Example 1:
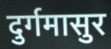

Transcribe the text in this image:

दुर्गमासुर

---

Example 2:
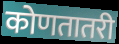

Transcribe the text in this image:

कोणतातरी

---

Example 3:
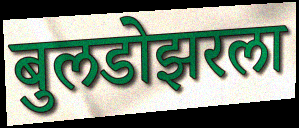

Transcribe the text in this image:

बुलडोझरला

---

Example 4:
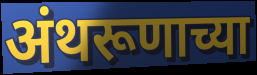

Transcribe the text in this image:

अंथरूणाच्या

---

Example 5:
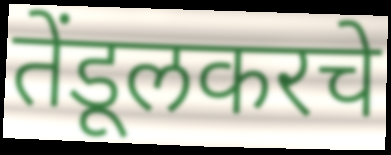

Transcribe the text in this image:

तेंडूलकरचे